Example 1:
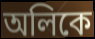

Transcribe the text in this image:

অলিকে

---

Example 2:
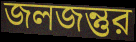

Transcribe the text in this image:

জলজন্তুর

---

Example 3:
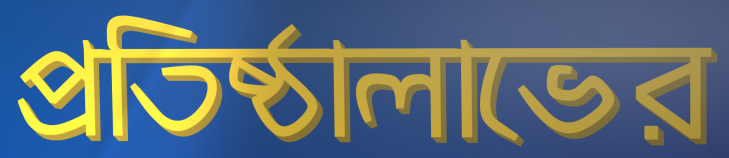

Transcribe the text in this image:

প্রতিষ্ঠালাভের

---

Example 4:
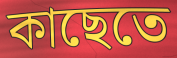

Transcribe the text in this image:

কাছেতে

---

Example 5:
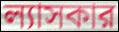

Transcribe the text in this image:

ল্যাসকার